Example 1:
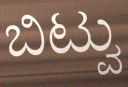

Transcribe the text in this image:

ಬಿಟ್ವು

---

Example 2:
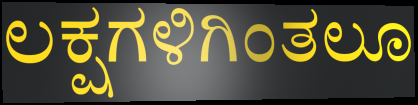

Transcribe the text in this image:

ಲಕ್ಷಗಳಿಗಿಂತಲೂ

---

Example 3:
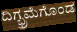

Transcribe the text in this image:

ದಿಗ್ಭ್ರಮೆಗೊಂಡ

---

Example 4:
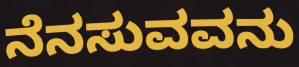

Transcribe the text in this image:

ನೆನಸುವವನು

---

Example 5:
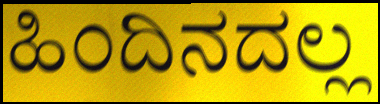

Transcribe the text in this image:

ಹಿಂದಿನದಲ್ಲ